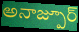
అనాజ్పూర్